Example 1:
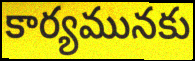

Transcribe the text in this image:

కార్యమునకు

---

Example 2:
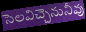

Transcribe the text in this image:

సెలవిచ్చెనునీవు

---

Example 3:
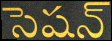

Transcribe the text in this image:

సెషన్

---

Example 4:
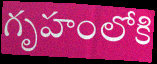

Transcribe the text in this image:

గృహంలోకి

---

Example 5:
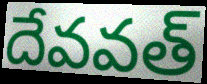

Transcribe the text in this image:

దేవవత్